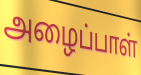
அழைப்பாள்